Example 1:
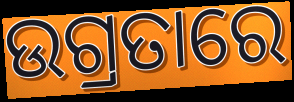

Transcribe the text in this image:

ଉଗ୍ରତାରେ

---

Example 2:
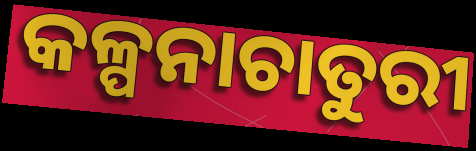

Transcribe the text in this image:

କଳ୍ପନାଚାତୁରୀ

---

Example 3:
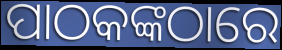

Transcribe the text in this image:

ପାଠକଙ୍କଠାରେ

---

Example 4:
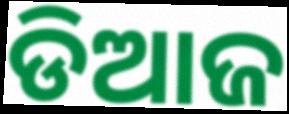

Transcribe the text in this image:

ଡିଆଜ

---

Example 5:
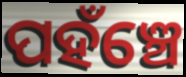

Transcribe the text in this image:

ପହଁଞ୍ଚେ